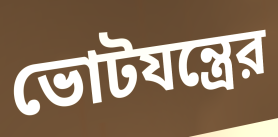
ভোটযন্ত্রের